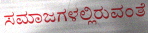
ಸಮಾಜಗಳಲ್ಲಿರುವಂತೆ